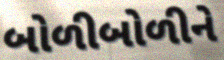
બોળીબોળીને